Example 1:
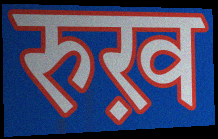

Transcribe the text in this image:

रुख़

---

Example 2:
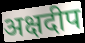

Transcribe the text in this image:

अक्षदीप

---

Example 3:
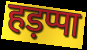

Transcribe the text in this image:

हड़प्पा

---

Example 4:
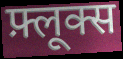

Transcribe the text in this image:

फ़्लूक्स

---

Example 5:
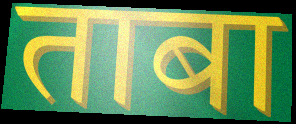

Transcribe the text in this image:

ताबा